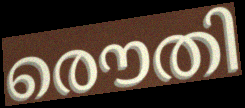
രൌതി